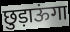
छुड़ाऊंगा